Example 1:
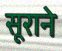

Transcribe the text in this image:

सूराने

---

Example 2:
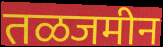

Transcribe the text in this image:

तळजमीन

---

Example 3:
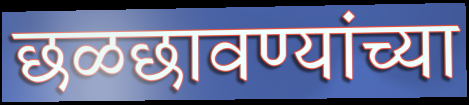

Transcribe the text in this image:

छळछावण्यांच्या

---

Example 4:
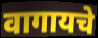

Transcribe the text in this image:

वागायचे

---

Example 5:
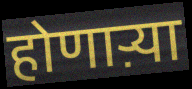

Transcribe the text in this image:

होणाऱ्‍या